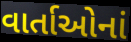
વાર્તાઓનાં